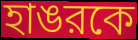
হাঙরকে